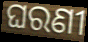
ଘରଣୀ